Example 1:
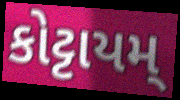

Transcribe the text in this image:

કોટ્ટાયમ્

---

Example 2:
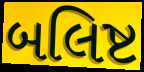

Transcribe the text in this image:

બલિષ્ટ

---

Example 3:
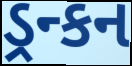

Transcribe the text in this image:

ડ્રન્કન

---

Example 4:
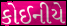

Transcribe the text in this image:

કોઈનીયે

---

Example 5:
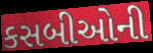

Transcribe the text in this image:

કસબીઓની